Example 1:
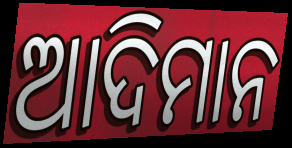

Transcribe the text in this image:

ଆଦିମାନ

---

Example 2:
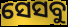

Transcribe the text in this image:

ସେସବୁ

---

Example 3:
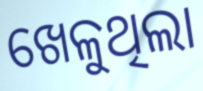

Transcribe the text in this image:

ଖେଳୁଥିଲା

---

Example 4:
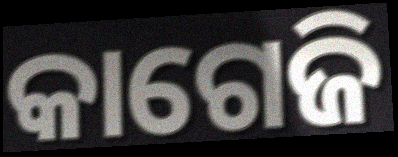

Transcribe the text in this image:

କାଗେଜି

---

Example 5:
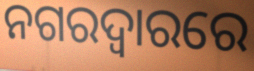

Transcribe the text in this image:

ନଗରଦ୍ୱାରରେ